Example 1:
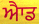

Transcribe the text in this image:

ਐਾਡ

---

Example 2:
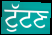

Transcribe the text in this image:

ਟੁੱਟਣ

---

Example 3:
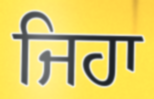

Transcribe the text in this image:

ਜਿਹਾ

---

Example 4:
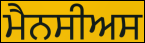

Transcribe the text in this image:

ਮੈਨਸੀਅਸ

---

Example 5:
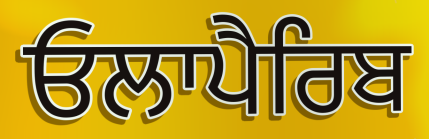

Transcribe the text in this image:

ਓਲਾਪੈਰਿਬ